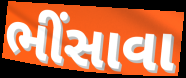
ભીંસાવા